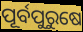
ପୂର୍ବପୁରୁଷେ